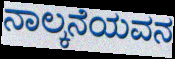
ನಾಲ್ಕನೆಯವನ